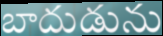
బాదుడును